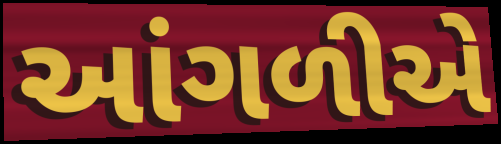
આંગળીએ